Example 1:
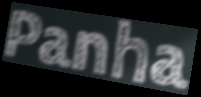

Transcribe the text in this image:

Panha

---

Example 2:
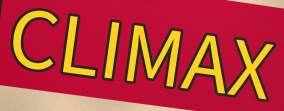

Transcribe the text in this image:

CLIMAX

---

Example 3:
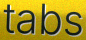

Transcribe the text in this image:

tabs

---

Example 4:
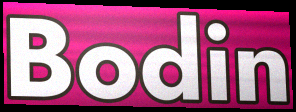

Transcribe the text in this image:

Bodin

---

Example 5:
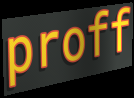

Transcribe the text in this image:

proff